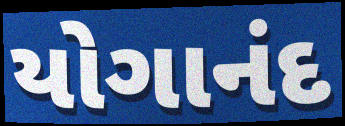
યોગાનંદ